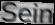
Sein